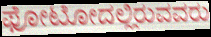
ಫೋಟೋದಲ್ಲಿರುವವರು